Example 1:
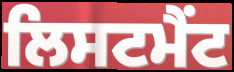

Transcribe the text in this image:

ਲਿਸਟਮੈਂਟ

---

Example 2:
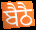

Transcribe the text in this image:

ਬੈਠੈ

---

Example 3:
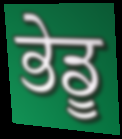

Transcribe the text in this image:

ਭੇਡੂ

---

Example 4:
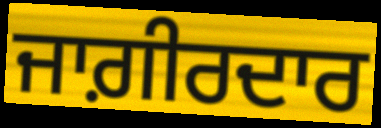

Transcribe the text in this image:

ਜਾਗ਼ੀਰਦਾਰ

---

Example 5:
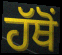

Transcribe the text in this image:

ਹੱਥੋਂ